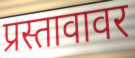
प्रस्तावावर